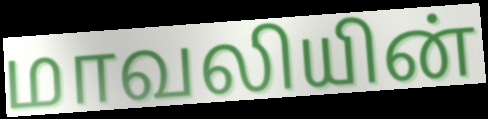
மாவலியின்